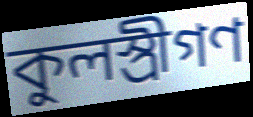
কুলস্ত্রীগণ